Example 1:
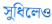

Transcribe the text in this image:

সুধিলেও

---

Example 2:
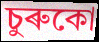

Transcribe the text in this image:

চুৰুকো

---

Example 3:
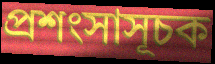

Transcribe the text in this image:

প্ৰশংসাসূচক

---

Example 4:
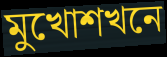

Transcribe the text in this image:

মুখোশখনে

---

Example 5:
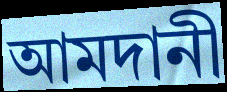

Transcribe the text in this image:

আমদানী